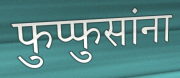
फुप्फुसांना